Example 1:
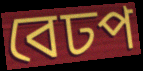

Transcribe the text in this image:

বেঢপ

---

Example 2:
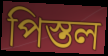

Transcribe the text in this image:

পিস্তল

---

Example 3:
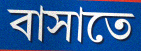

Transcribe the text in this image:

বাসাতে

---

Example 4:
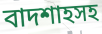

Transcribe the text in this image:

বাদশাহসহ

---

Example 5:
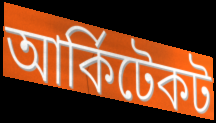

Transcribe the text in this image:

আর্কিটেকট